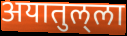
अयातुल्ला